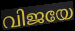
വിജയേ